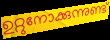
ഉറ്റുനോക്കുന്നുണ്ട്